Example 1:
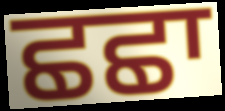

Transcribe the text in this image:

ਛਛਾ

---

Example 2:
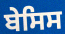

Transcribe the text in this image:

ਬੇਸਿਸ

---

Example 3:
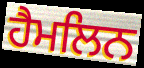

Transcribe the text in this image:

ਹੈਮਲਿਨ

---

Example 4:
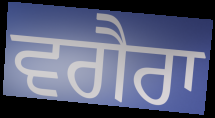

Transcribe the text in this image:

ਵਗੈਰਾ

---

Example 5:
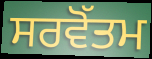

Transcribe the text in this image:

ਸਰਵੋੱਤਮ